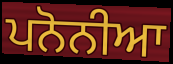
ਪਨੋਨੀਆ